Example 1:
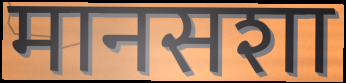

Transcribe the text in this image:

मानसशा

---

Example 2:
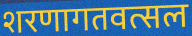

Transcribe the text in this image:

शरणागतवत्सल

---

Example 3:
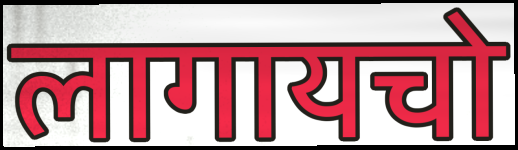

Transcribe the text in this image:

लागायचो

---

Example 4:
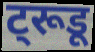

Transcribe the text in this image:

ट्रूडू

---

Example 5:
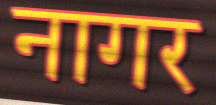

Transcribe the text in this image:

नागर